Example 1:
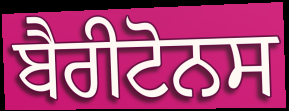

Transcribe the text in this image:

ਬੈਰੀਟੋਨਸ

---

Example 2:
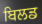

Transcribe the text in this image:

ਬਿਲਡ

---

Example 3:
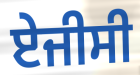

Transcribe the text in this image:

ਏਜੀਸੀ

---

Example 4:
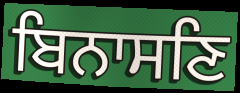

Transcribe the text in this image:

ਬਿਨਾਸਣਿ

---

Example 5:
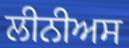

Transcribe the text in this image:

ਲੀਨੀਅਸ